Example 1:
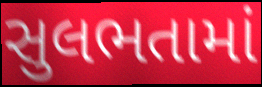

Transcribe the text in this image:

સુલભતામાં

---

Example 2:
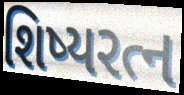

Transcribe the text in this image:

શિષ્યરત્ન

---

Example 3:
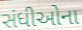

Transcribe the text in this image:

સંધીઓના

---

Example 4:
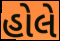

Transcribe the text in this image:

હોલે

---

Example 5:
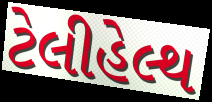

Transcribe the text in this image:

ટેલીહેલ્થ